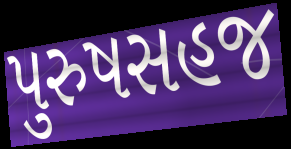
પુરુષસહજ